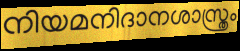
നിയമനിദാനശാസ്ത്രം